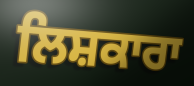
ਲਿਸ਼ਕਾਰਾ